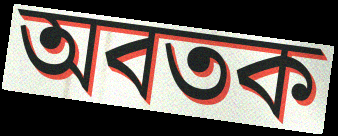
অবতক